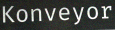
Konveyor